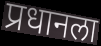
प्रधानला